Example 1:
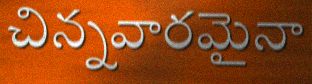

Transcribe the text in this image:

చిన్నవారమైనా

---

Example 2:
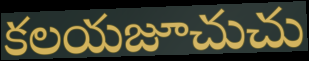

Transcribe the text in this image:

కలయజూచుచు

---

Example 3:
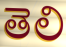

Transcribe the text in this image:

తెలి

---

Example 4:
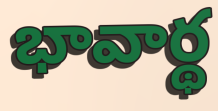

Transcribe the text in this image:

భావార్థ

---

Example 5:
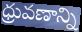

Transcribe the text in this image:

ధ్రువణాన్ని